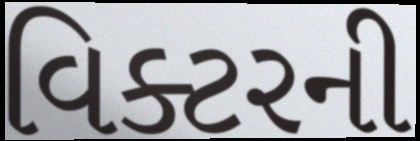
વિક્ટરની